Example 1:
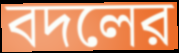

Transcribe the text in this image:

বদলের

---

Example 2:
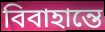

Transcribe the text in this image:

বিবাহান্তে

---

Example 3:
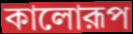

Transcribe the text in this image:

কালোরূপ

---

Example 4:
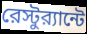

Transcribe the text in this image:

রেস্টুর‍্যান্টে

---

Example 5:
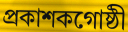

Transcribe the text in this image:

প্রকাশকগোষ্ঠী